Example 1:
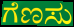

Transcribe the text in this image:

ಗೆಣಸು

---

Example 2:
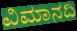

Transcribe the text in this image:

ವಿಮಾನದಿ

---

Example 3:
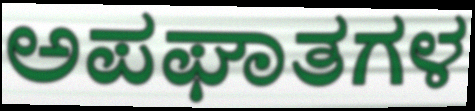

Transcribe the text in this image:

ಅಪಘಾತಗಳ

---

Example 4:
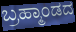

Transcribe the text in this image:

ಬ್ರಹ್ಮಾಂಡದ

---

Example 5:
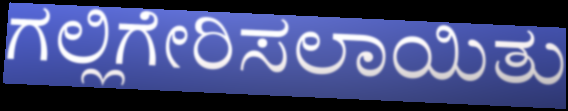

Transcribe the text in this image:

ಗಲ್ಲಿಗೇರಿಸಲಾಯಿತು